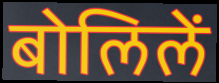
बोलिलें